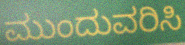
ಮುಂದುವರಿಸಿ